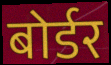
बोर्डर